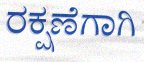
ರಕ್ಷಣೆಗಾಗಿ